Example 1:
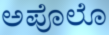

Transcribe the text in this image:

ಅಪೊಲೊ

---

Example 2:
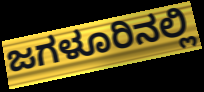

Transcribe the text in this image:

ಜಗಳೂರಿನಲ್ಲಿ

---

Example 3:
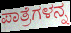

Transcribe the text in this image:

ಪಾತ್ರೆಗಳನ್ನ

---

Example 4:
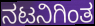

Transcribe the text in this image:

ನಟನಿಗಿಂತ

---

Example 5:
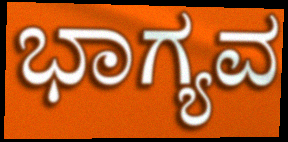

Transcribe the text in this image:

ಭಾಗ್ಯವ